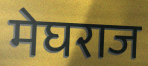
मेघराज